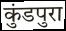
कुंडपुरा